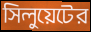
সিলুয়েটের